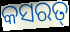
କସରତ୍